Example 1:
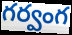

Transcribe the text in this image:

గర్వంగ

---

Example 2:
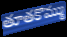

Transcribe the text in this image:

తూతకొమ్ము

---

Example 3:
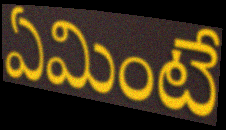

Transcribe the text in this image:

ఏమింటే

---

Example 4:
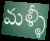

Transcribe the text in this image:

మళ్ళీ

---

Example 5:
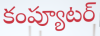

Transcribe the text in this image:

కంప్యూటర్